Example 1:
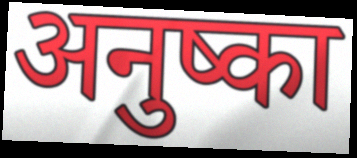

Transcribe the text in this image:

अनुष्का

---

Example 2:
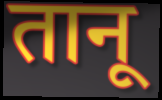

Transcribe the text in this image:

तानू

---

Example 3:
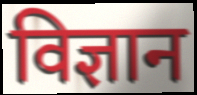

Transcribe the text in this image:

विज्ञान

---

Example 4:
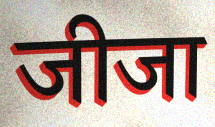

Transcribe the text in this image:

जीजा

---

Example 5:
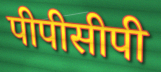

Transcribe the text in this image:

पीपीसीपी